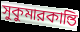
সুকুমারকান্তি